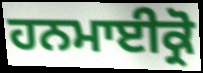
ਹਨਮਾਈਕ੍ਰੋ